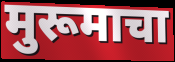
मुरूमाचा